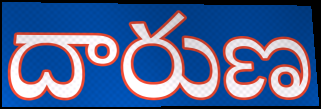
దారుణ